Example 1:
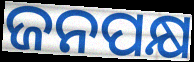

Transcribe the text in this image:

ଜନପକ୍ଷ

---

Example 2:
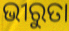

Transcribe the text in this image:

ଭୀରୁତା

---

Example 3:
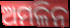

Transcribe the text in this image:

ଅମଳିନ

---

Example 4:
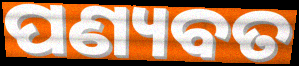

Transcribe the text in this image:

ପଣ୍ୟବତ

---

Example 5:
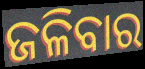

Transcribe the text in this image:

ଜଳିବାର